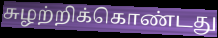
சுழற்றிக்கொண்டது